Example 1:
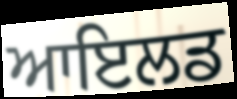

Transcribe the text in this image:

ਆਇਲਡ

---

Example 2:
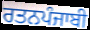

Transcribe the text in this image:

ਰਤਨਪੰਜਾਬੀ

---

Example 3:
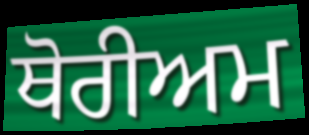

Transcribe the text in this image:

ਥੋਰੀਅਮ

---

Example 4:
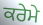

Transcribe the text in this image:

ਕਰੇਮੇ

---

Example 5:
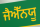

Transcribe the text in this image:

ਜੈਐੱਨਯੂ